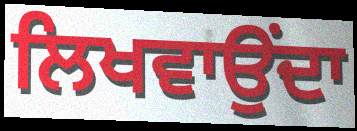
ਲਿਖਵਾਉਂਦਾ